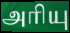
அரியு